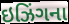
ઇઝિંગના